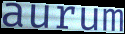
aurum